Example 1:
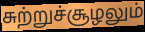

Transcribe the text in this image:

சுற்றுச்சூழலும்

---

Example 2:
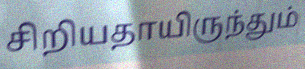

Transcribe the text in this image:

சிறியதாயிருந்தும்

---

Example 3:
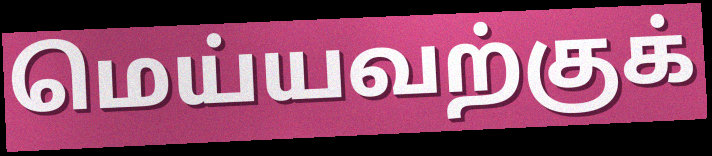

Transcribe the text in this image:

மெய்யவற்குக்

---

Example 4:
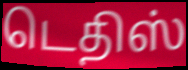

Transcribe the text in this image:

டெதிஸ்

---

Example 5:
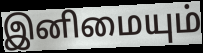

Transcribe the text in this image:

இனிமையும்